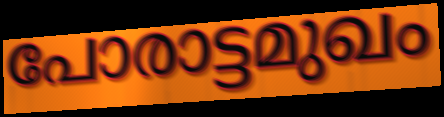
പോരാട്ടമുഖം